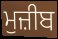
ਮੁਜ਼ੀਬ